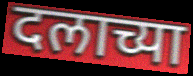
दलाच्या